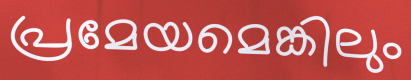
പ്രമേയമെങ്കിലും